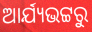
ଆର୍ଯ୍ୟଭଟ୍ଟରୁ